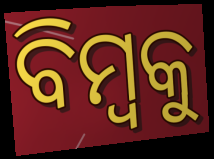
ବିମ୍ବକୁ